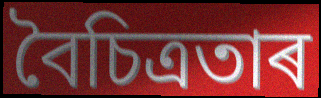
বৈচিত্ৰতাৰ